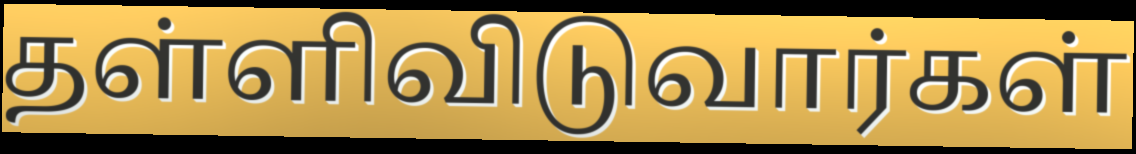
தள்ளிவிடுவார்கள்